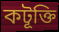
কটূক্তি